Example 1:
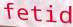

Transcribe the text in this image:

fetid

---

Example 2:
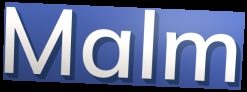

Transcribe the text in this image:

Malm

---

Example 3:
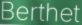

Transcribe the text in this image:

Berthet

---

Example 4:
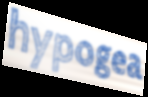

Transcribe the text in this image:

hypogea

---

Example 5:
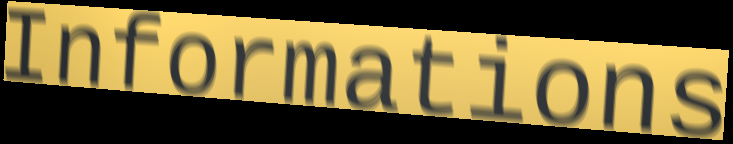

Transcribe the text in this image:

Informations